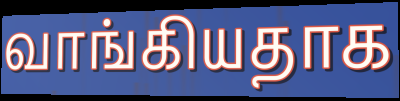
வாங்கியதாக